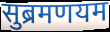
सुब्रमणयम